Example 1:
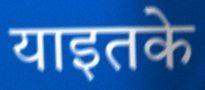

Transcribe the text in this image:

याइतके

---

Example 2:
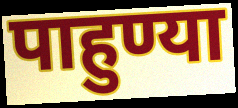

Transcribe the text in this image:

पाहुण्या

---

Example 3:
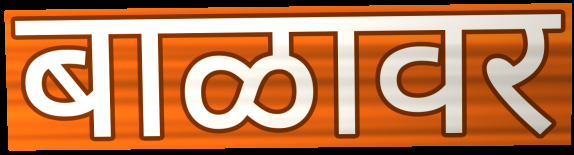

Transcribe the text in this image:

बाळावर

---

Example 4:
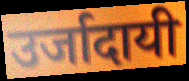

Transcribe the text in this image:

उर्जादायी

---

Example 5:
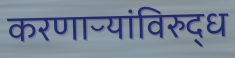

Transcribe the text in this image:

करणाऱ्यांविरुद्ध